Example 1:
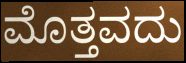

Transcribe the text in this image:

ಮೊತ್ತವದು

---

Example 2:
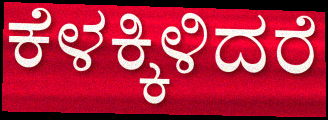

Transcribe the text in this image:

ಕೆಳಕ್ಕಿಳಿದರೆ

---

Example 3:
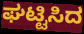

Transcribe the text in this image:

ಘಟ್ಟಿಸಿದ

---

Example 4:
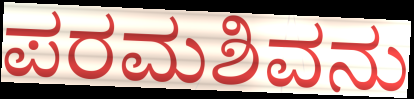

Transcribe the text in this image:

ಪರಮಶಿವನು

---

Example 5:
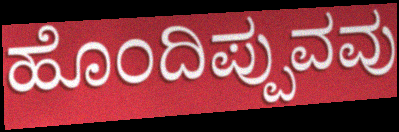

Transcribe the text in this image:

ಹೊಂದಿಪ್ಪುವವು